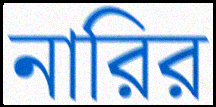
নারির